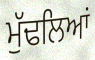
ਮੁੱਢਲਿਆਂ